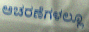
ಆಚರಣೆಗಳಲ್ಲೂ